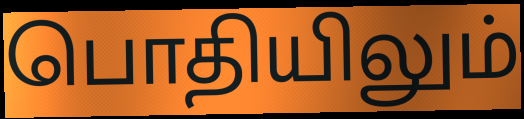
பொதியிலும்